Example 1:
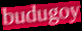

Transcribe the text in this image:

budugoy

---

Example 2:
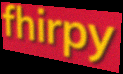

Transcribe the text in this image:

fhirpy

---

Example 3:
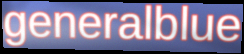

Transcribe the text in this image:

generalblue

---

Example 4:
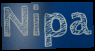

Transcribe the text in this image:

Nipa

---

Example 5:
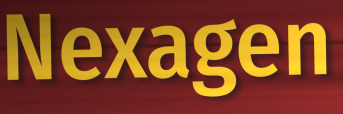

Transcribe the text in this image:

Nexagen